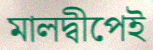
মালদ্বীপেই